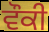
ਵੌਕੀ